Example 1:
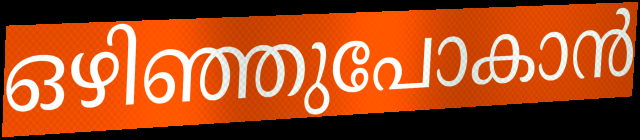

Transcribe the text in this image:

ഒഴിഞ്ഞുപോകാൻ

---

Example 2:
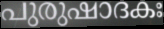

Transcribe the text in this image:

പുരുഷാദകഃ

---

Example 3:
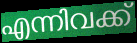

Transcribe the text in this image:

എന്നിവക്ക്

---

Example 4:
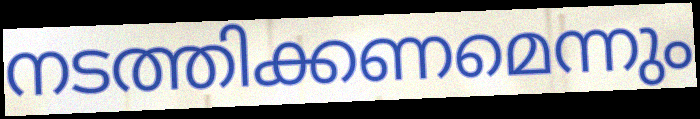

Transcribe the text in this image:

നടത്തിക്കണമെന്നും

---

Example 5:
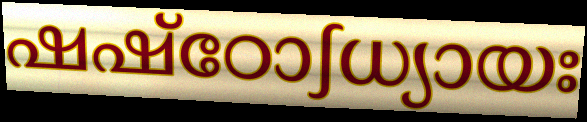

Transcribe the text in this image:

ഷഷ്ഠോഽധ്യായഃ